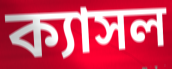
ক্যাসল